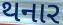
થનાર